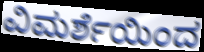
ವಿಮರ್ಶೆಯಿಂದ